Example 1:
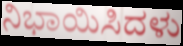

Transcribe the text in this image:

ನಿಭಾಯಿಸಿದಳು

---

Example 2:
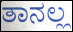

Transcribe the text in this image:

ತಾನಲ್ಲ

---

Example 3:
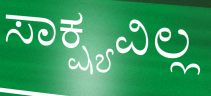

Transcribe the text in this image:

ಸಾಕ್ಷ್ಯವಿಲ್ಲ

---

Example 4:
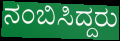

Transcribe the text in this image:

ನಂಬಿಸಿದ್ದರು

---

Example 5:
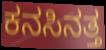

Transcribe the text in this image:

ಕನಸಿನತ್ತ